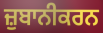
ਜ਼ੁਬਾਨੀਕਰਨ